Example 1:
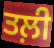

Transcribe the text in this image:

ਤਲ਼ੀ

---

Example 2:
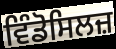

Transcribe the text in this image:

ਵਿੰਡੋਸਿਲਜ਼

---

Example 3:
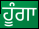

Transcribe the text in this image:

ਹੂੰਗਾ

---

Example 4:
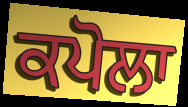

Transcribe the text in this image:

ਕਪੋਲਾ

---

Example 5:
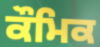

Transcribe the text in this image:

ਕੌਮਿਕ